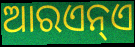
ଆରଏନ୍ଏ